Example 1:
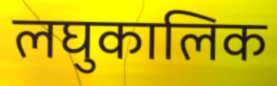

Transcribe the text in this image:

लघुकालिक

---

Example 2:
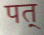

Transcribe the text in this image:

पत्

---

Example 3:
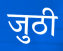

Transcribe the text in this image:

जुठी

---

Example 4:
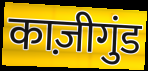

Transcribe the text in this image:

काज़ीगुंड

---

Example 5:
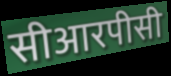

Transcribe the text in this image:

सीआरपीसी